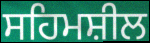
ਸਹਿਮਸ਼ੀਲ